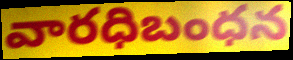
వారధిబంధన